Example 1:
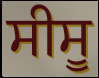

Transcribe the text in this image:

ਸੀਸੂ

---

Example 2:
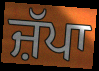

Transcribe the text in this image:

ਜ਼ੱਪਾ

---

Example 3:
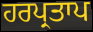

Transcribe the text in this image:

ਹਰਪ੍ਰਤਾਪ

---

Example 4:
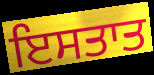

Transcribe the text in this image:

ਇਸਤਾਤ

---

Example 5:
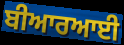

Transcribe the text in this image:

ਬੀਆਰਆਈ